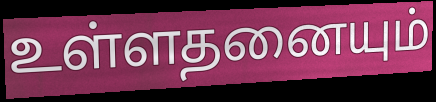
உள்ளதனையும்